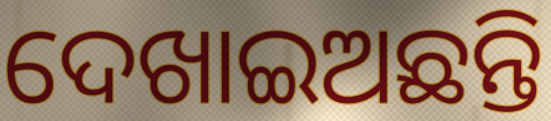
ଦେଖାଇଅଛନ୍ତି